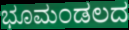
ಭೂಮಂಡಲದ